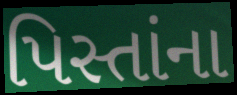
પિસ્તાંના